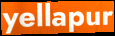
yellapur